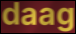
daag